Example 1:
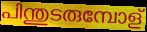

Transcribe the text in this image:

പിന്തുടരുമ്പോള്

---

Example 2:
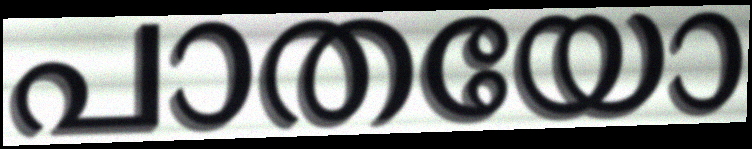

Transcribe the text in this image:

പാതയോ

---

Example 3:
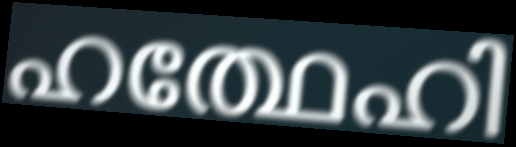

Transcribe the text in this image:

ഹത്ഥേഹി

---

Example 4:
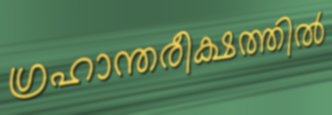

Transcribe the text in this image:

ഗ്രഹാന്തരീക്ഷത്തിൽ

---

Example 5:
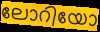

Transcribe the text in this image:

ലോറിയോ